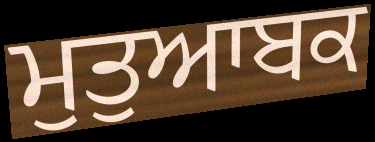
ਮੁਤੁਆਬਕ